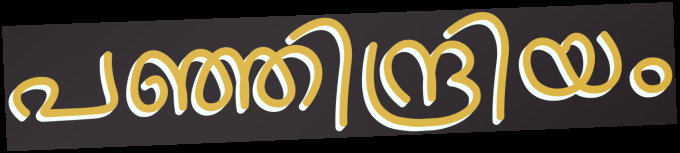
പഞ്ഞിന്ദ്രിയം